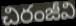
చిరంజీవి